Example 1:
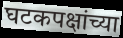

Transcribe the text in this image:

घटकपक्षांच्या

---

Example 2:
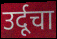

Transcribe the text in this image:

उर्दूचा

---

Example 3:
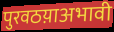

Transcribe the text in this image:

पुरवठय़ाअभावी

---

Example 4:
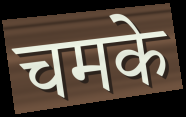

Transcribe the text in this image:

चमके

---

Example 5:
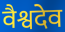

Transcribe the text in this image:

वैश्वदेव